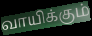
வாயிக்கும்